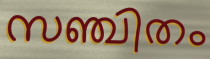
സഞ്ചിതം